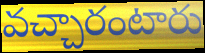
వచ్చారంటారు